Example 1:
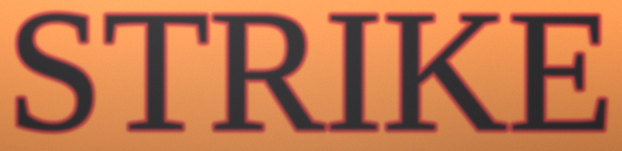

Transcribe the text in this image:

STRIKE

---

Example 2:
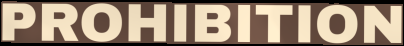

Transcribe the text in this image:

PROHIBITION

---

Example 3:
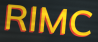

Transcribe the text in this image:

RIMC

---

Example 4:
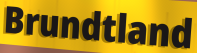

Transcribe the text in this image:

Brundtland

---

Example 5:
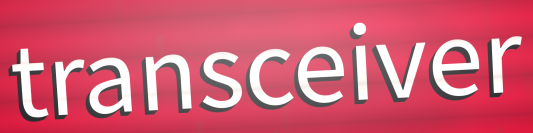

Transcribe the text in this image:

transceiver